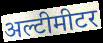
अल्टीमीटर